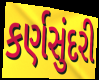
કર્ણસુંદરી